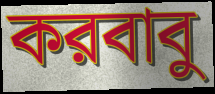
করবাবু